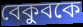
বেকুবকে